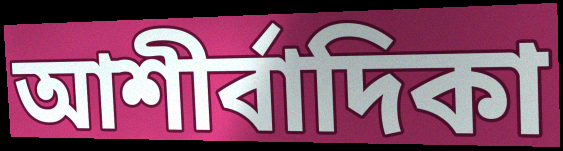
আশীর্বাদিকা